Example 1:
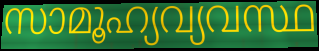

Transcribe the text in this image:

സാമൂഹ്യവ്യവസ്ഥ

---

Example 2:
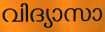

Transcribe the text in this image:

വിദ്യാസാ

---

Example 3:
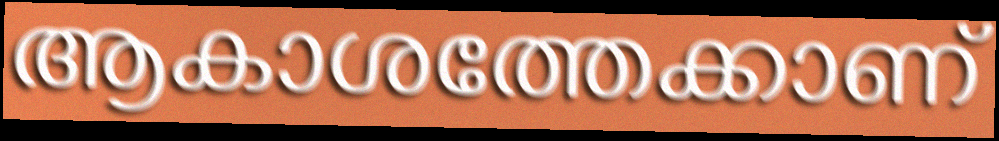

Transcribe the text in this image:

ആകാശത്തേക്കാണ്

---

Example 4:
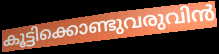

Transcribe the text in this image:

കൂട്ടിക്കൊണ്ടുവരുവിൻ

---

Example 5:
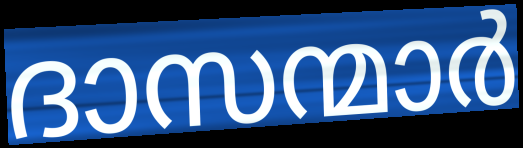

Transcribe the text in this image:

ദാസന്മാർ